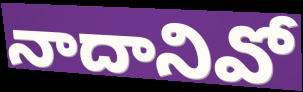
నాదానివో